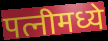
पत्नीमध्ये